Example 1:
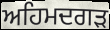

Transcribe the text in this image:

ਅਹਿਮਦਗੜ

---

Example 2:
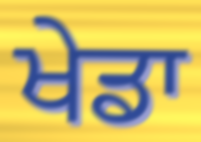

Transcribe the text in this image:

ਖੇਡਾ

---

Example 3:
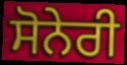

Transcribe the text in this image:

ਸੋਨੇਰੀ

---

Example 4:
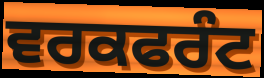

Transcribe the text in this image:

ਵਰਕਫਰੰਟ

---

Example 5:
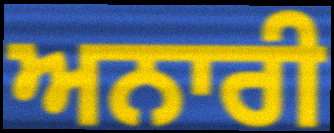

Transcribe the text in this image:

ਅਨਾਰੀ